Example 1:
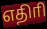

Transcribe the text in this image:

எதிரி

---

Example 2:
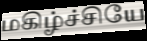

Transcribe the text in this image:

மகிழ்ச்சியே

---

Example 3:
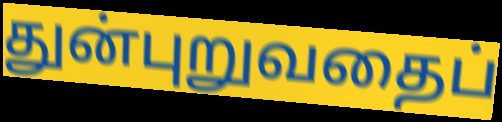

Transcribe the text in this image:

துன்புறுவதைப்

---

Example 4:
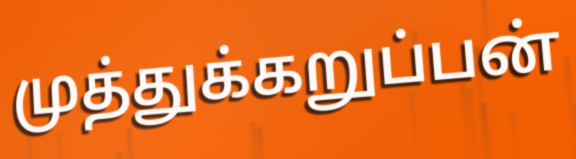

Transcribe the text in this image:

முத்துக்கறுப்பன்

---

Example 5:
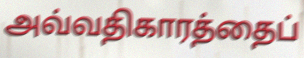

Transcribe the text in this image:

அவ்வதிகாரத்தைப்